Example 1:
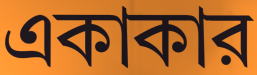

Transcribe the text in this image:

একাকার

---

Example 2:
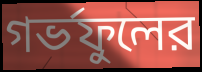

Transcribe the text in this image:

গর্ভফুলের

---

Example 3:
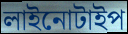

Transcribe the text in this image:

লাইনোটাইপ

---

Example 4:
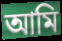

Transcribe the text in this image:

আমি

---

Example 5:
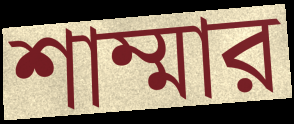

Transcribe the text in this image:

শাম্মার